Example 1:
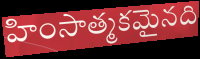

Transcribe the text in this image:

హింసాత్మకమైనది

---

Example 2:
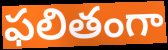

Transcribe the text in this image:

ఫలితంగా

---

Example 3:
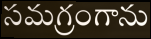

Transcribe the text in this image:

సమగ్రంగాను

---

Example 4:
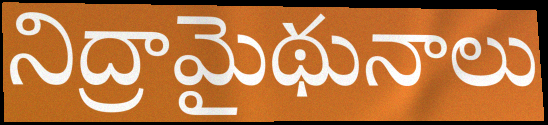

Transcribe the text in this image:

నిద్రామైథునాలు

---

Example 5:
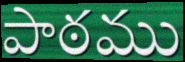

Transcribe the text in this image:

పాఠము